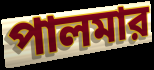
পালমার